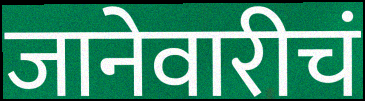
जानेवारीचं